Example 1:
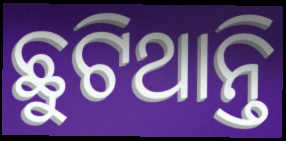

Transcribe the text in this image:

ଛୁଟିଥାନ୍ତି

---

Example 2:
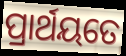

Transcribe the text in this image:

ପ୍ରାର୍ଥୟତେ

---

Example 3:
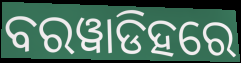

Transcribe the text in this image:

ବରୱାଡିହରେ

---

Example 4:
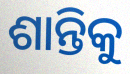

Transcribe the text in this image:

ଶାନ୍ତିକୁ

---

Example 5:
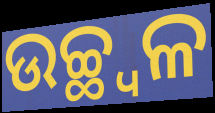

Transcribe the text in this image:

ଉଚ୍ଛ୍ୱଳ